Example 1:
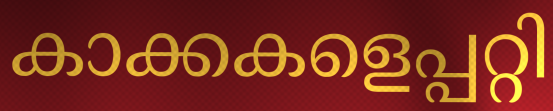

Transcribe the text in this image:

കാക്കകളെപ്പറ്റി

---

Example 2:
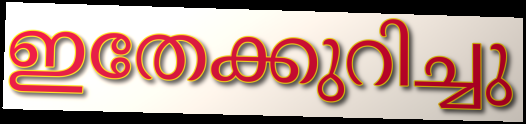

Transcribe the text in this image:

ഇതേക്കുറിച്ചു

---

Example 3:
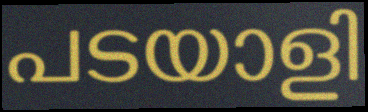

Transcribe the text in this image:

പടയാളി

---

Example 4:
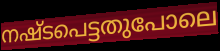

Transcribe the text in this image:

നഷ്ടപെട്ടതുപോലെ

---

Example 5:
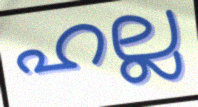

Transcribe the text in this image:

ഹല്ല